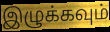
இழுக்கவும்